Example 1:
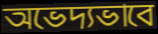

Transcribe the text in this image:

অভেদ্যভাবে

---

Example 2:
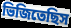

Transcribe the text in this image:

ভিজিতেছিস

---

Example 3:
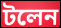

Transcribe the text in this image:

টলেন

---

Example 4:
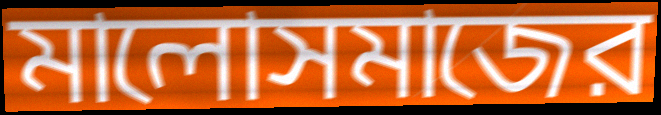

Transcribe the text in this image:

মালোসমাজের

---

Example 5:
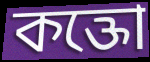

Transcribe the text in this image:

কক্তো